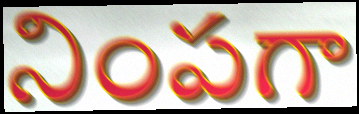
నింపగా